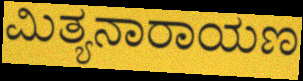
ಮಿತ್ಯನಾರಾಯಣ